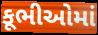
કૂભીઓમાં